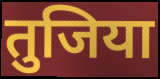
तुजिया